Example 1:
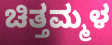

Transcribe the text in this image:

ಚಿತ್ತಮ್ಮಳ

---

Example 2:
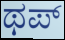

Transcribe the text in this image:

ಥಪ್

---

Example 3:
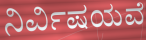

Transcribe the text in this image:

ನಿರ್ವಿಷಯವೆ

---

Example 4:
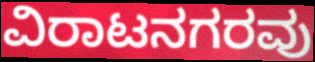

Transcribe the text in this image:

ವಿರಾಟನಗರವು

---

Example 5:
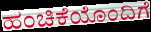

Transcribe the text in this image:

ಹಂಚಿಕೆಯೊಂದಿಗೆ